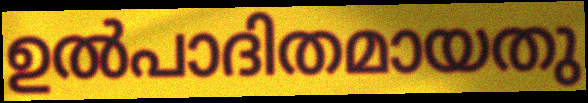
ഉൽപാദിതമായതു